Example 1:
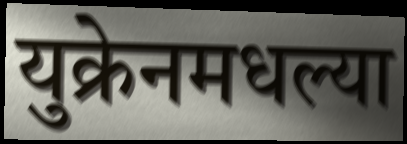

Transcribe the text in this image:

युक्रेनमधल्या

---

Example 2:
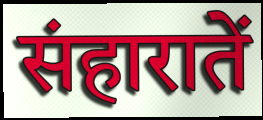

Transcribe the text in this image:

संहारातें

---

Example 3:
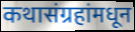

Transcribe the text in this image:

कथासंग्रहांमधून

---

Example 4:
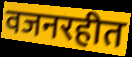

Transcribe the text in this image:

वजनरहीत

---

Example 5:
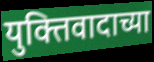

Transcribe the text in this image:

युक्तिवादाच्या